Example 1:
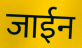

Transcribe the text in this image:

जाईन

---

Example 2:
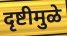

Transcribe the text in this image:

दृष्टीमुळे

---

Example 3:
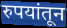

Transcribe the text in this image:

रुपयांतून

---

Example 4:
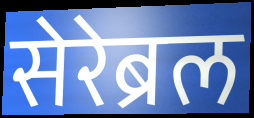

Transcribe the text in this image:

सेरेब्रल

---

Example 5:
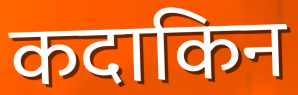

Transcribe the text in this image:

कदाकिन